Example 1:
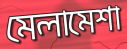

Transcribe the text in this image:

মেলামেশা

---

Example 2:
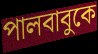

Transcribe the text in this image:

পালবাবুকে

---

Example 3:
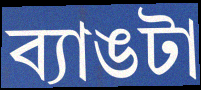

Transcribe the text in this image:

ব্যাঙটা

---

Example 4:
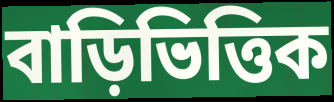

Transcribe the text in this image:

বাড়িভিত্তিক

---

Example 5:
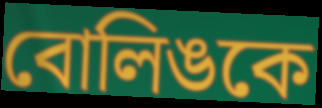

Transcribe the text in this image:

বোলিঙকে